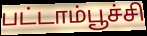
பட்டாம்பூச்சி